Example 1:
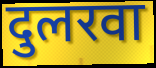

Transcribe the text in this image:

दुलरवा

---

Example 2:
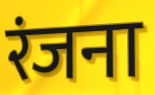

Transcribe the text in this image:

रंजना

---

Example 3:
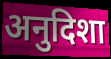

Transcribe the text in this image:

अनुदिशा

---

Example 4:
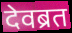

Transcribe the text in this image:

देवब्रत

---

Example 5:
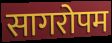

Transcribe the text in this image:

सागरोपम